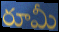
రూమీ